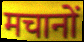
मचानों